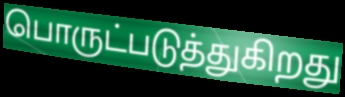
பொருட்படுத்துகிறது